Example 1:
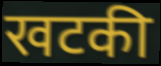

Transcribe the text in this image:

खटकी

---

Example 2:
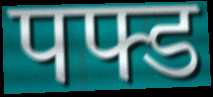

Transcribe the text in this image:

पफ्ड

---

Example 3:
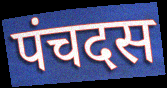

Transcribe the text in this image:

पंचदस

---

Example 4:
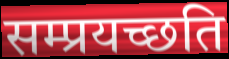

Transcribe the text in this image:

सम्प्रयच्छति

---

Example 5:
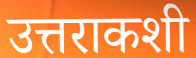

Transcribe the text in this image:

उत्तराकशी